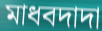
মাধবদাদা